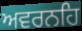
ਅਵਰਨਹਿ